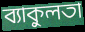
ব্যাকুলতা